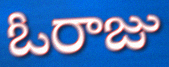
ఓరాజు